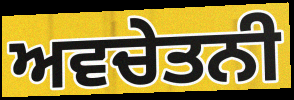
ਅਵਚੇਤਨੀ